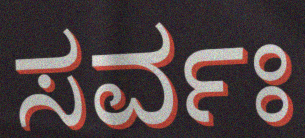
ಸರ್ವಃ